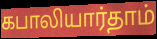
கபாலியார்தாம்